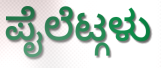
ಪೈಲೆಟ್ಗಳು